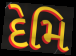
દેમિ